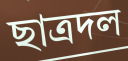
ছাত্রদল